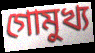
গোমুখ্য